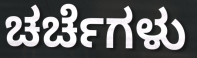
ಚರ್ಚೆಗಳು